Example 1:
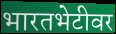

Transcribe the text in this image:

भारतभेटीवर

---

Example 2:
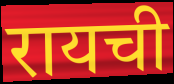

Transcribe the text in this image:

रायची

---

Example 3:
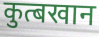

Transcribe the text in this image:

कुत्बखान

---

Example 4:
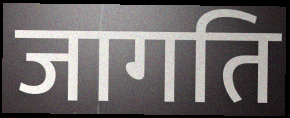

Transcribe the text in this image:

जागति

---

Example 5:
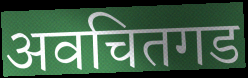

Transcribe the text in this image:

अवचितगड